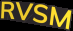
RVSM